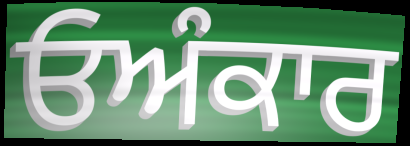
ਓਅੰਕਾਰ